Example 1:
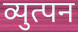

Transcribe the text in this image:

व्युत्पन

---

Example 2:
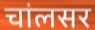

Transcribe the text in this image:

चांलसर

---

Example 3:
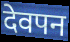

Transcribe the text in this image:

देवपन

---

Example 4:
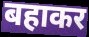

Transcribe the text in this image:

बहाकर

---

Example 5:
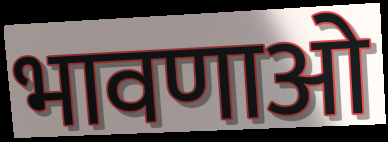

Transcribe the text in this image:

भावणाओ